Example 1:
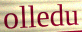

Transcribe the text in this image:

olledu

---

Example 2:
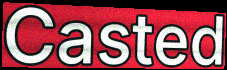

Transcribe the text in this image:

Casted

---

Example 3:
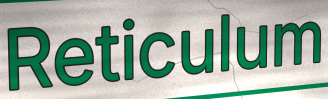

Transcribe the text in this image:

Reticulum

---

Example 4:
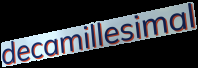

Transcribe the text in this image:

decamillesimal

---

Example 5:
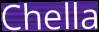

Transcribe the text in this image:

Chella